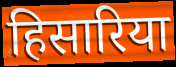
हिसारिया